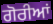
ਗੋਰੀਆਂ